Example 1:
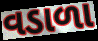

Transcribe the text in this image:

વડાળા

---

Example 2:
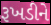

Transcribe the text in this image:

રૂખડીને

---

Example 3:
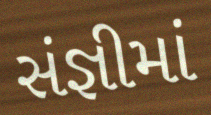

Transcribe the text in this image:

સંજ્ઞીમાં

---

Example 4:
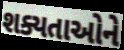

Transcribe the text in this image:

શક્યતાઓને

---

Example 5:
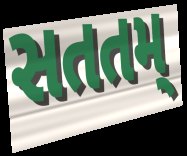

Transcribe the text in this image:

સતતમ્